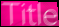
Title